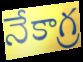
నేకాగ్ర